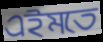
এইমতে